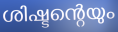
ശിഷ്ടന്റെയും